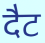
दैट